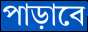
পাড়াবে